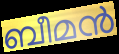
ബീമൻ